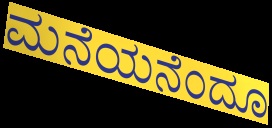
ಮನೆಯನೆಂದೂ